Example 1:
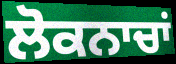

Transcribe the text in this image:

ਲੋਕਨਾਚਾਂ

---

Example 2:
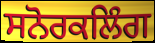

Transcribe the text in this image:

ਸਨੋਰਕਲਿੰਗ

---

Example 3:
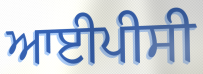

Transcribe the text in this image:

ਆਈਪੀਸੀ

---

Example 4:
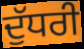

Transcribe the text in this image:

ਦੁੱਧਰੀ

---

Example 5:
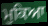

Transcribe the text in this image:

ਮੁਕਿਆ